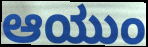
ಆಯುಂ